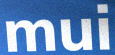
mui